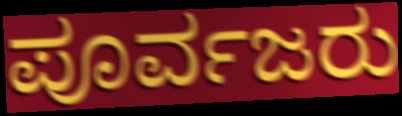
ಪೂರ್ವಜರು